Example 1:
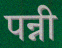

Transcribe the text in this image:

पन्नी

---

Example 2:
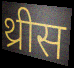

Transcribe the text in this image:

थ्रीस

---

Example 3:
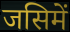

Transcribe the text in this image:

जसिमें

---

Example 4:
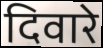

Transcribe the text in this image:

दिवारे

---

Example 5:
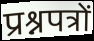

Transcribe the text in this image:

प्रश्नपत्रों